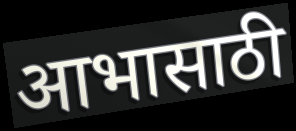
आभासाठी